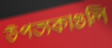
উপত্যকাগুলি